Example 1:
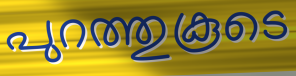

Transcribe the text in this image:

പുറത്തുകൂടെ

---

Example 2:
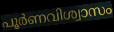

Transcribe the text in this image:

പൂർണവിശ്വാസം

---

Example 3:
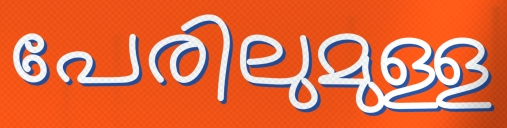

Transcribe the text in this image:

പേരിലുമുള്ള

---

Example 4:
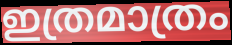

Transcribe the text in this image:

ഇത്രമാത്രം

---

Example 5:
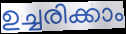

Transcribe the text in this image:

ഉച്ചരിക്കാം